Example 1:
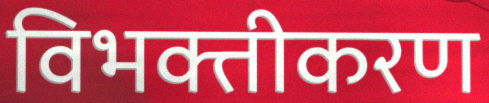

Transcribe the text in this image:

विभक्तीकरण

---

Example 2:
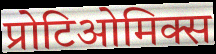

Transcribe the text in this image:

प्रोटिओमिक्स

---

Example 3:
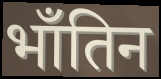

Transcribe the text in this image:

भाँतिन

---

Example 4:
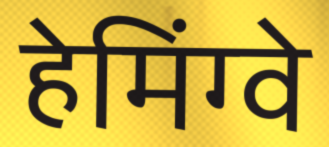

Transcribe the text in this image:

हेमिंग्वे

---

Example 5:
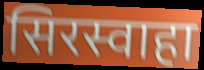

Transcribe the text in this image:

सिरस्वाहा